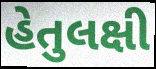
હેતુલક્ષી